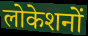
लोकेशनों